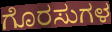
ಗೊರಸುಗಳ